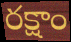
రక్షాం